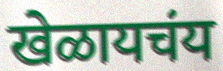
खेळायचंय